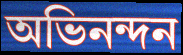
অভিনন্দন